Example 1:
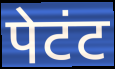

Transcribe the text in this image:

पेटंट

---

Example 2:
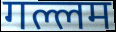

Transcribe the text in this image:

गल्लम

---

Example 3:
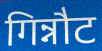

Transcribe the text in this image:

गिन्नौट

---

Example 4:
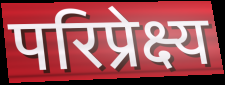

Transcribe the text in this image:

परिप्रेक्ष्य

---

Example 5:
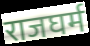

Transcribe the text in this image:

राजघर्म